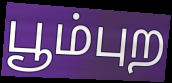
பூம்புற